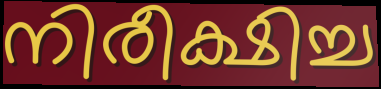
നിരീക്ഷിച്ച